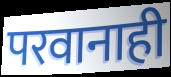
परवानाही